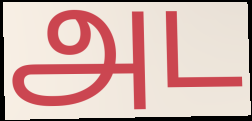
அட